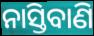
ନାସ୍ତିବାଣି